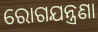
ରୋଗଯନ୍ତ୍ରଣା